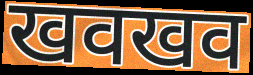
खवखव